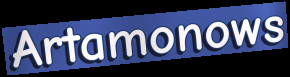
Artamonows